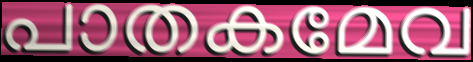
പാതകമേവ